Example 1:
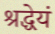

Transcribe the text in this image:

श्रद्धेयं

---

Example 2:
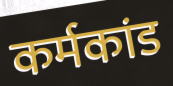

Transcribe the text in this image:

कर्मकांड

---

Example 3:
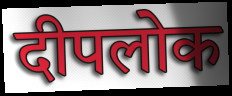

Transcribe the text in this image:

दीपलोक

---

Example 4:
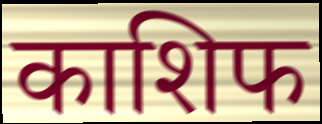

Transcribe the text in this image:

काशिफ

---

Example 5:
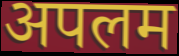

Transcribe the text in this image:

अपलम